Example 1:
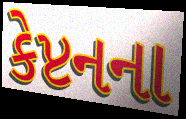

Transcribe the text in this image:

કેપ્ટનના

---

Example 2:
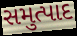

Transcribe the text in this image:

સમુત્પાદ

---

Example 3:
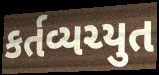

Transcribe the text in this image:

કર્તવ્યચ્યુત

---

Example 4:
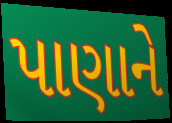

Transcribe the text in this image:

પાણાને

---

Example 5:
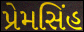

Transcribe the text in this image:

પ્રેમસિંહ